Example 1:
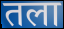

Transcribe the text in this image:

तला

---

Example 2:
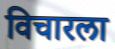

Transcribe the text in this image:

विचारला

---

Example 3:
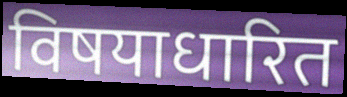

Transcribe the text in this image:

विषयाधारित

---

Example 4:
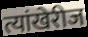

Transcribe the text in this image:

त्यांखेरीज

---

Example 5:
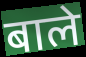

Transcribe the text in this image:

बाले